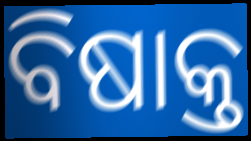
ବିଷାକ୍ତ